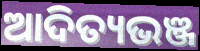
ଆଦିତ୍ୟଭଞ୍ଜ